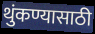
थुंकण्यासाठी